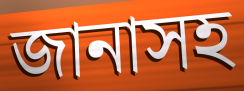
জানাসহ